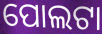
ପୋଲଟା